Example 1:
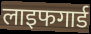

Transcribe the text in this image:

लाइफगार्ड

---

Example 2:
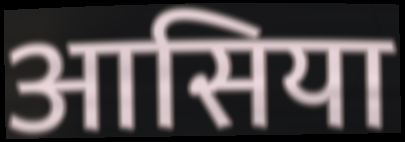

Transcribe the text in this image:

आसिया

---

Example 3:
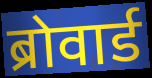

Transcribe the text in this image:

ब्रोवार्ड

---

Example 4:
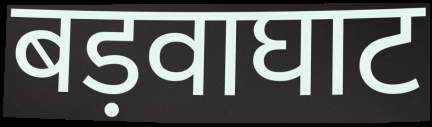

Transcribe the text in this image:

बड़वाघाट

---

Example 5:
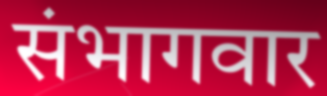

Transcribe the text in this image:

संभागवार